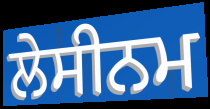
ਲੇਸੀਨਮ